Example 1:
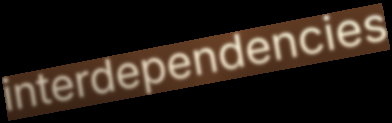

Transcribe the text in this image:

interdependencies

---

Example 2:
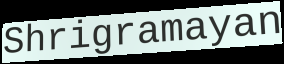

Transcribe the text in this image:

Shrigramayan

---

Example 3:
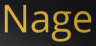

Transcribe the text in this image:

Nage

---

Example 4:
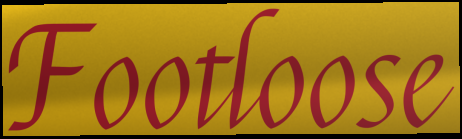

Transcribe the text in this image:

Footloose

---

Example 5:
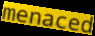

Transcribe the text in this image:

menaced